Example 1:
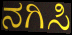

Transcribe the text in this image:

ನಗಿಸಿ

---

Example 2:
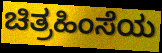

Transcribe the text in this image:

ಚಿತ್ರಹಿಂಸೆಯ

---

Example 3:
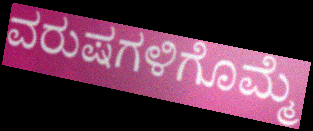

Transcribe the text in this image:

ವರುಷಗಳಿಗೊಮ್ಮೆ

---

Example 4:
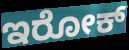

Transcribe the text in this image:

ಇರೋಕ್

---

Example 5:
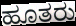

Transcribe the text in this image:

ಹೂತರು